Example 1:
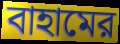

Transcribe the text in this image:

বাহামের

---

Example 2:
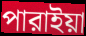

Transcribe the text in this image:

পারাইয়া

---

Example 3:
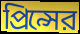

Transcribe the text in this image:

প্রিন্সের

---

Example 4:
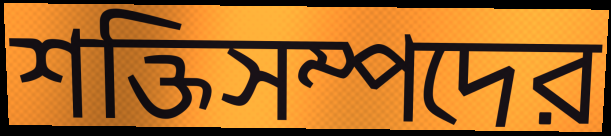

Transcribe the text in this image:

শক্তিসম্পদের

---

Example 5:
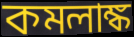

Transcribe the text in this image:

কমলাঙ্ক